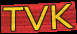
TVK